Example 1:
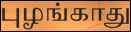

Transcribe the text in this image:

புழங்காது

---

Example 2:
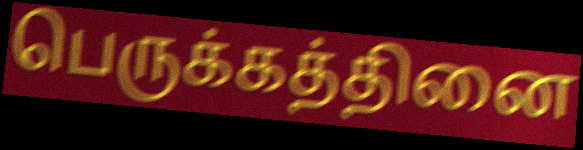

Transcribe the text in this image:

பெருக்கத்தினை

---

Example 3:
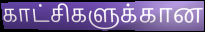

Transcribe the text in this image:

காட்சிகளுக்கான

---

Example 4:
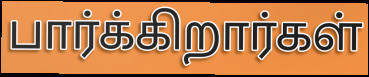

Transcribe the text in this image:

பார்க்கிறார்கள்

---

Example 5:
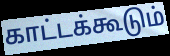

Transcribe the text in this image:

காட்டக்கூடும்